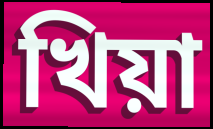
খিয়া